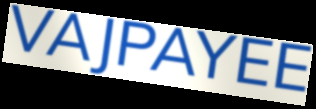
VAJPAYEE